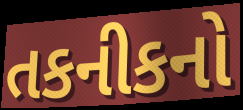
તકનીકનો